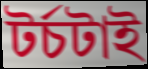
টর্চটাই